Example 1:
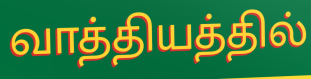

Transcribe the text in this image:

வாத்தியத்தில்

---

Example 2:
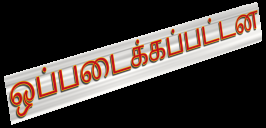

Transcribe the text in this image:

ஒப்படைக்கப்பட்டன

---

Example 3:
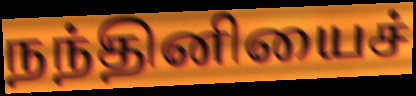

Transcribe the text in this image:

நந்தினியைச்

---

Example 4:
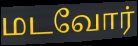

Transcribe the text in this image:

மடவோர்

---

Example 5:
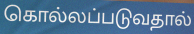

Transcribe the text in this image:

கொல்லப்படுவதால்